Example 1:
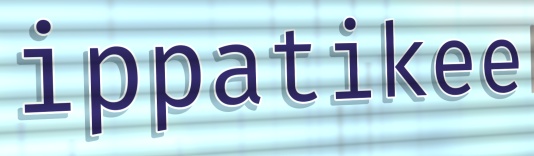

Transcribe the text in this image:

ippatikee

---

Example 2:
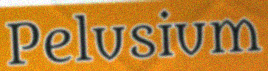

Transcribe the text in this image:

Pelusium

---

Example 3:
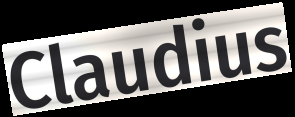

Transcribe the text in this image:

Claudius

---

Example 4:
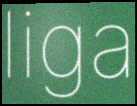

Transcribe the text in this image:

liga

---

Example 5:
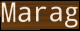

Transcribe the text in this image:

Marag